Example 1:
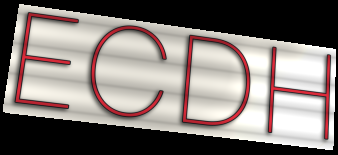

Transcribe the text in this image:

ECDH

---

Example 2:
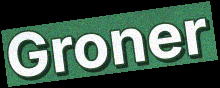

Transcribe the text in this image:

Groner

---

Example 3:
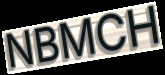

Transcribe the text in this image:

NBMCH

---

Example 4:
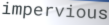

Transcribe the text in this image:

impervious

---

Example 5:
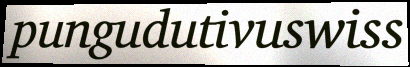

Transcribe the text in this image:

pungudutivuswiss